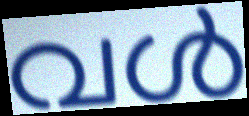
വൾ